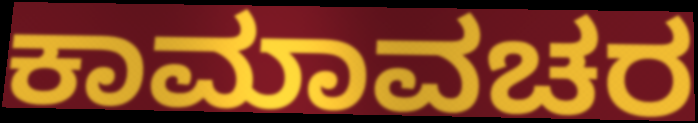
ಕಾಮಾವಚರ